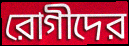
রোগীদের